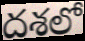
దశలో